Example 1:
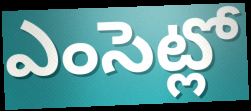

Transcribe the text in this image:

ఎంసెట్లో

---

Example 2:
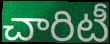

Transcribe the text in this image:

చారిటీ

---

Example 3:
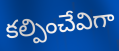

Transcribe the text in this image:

కల్పించేవిగా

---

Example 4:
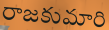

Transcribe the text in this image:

రాజకుమారి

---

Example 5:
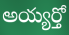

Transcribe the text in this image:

అయ్యర్తో